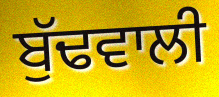
ਬੁੱਢਵਾਲੀ